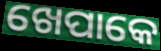
ଖେପାକେ